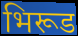
भिरूड